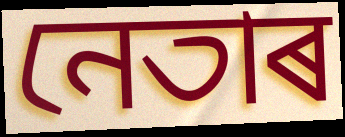
নেতাৰ